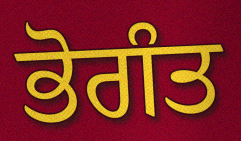
ਭੋਗੰਤ